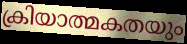
ക്രിയാത്മകതയും